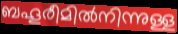
ബഹൂരീമിൽനിന്നുള്ള